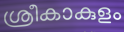
ശ്രീകാകുളം